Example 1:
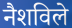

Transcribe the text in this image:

नैशविले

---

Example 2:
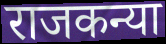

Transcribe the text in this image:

राजकन्या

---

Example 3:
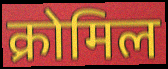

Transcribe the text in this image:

क्रोमिल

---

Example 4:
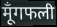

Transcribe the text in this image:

मूँगफली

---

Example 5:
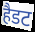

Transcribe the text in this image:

हैडट